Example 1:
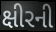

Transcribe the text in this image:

ક્ષીરની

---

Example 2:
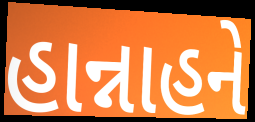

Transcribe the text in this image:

હાન્નાહને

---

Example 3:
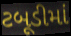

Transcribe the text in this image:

ટબૂડીમાં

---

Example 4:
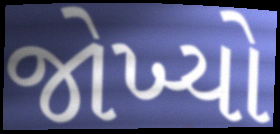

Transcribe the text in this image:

જોખ્યો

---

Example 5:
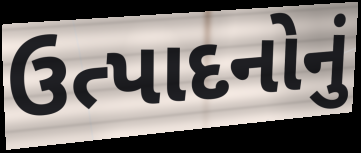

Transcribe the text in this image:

ઉત્પાદનોનું